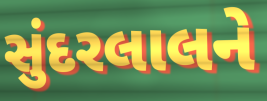
સુંદરલાલને